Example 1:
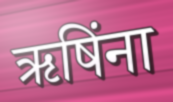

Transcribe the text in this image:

ऋषिंना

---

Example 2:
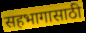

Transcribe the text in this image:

सहभागासाठी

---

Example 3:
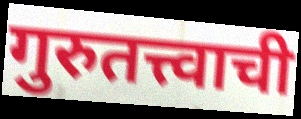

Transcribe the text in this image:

गुरुतत्त्वाची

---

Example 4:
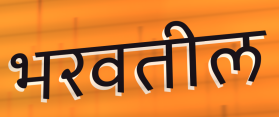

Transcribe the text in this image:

भरवतील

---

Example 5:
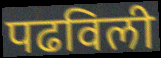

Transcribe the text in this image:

पढविली